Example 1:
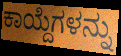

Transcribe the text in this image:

ಕಾಯ್ದೆಗಳನ್ನು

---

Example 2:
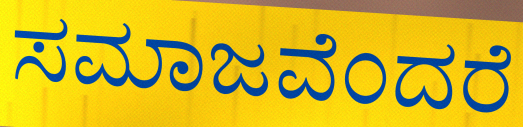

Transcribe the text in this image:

ಸಮಾಜವೆಂದರೆ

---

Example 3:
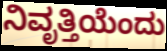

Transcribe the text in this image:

ನಿವೃತ್ತಿಯೆಂದು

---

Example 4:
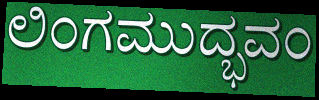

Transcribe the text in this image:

ಲಿಂಗಮುದ್ಭವಂ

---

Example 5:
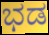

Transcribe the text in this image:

ಭಡ